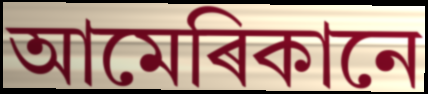
আমেৰিকানে